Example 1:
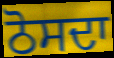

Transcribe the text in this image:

ਠੋਸਦਾ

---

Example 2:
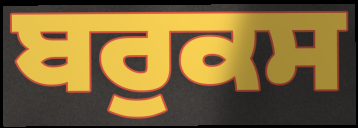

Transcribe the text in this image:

ਬਰੁਕਸ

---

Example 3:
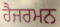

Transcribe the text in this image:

ਹੈਜਰਮਨ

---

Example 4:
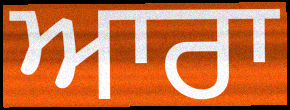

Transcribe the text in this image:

ਆਰਾ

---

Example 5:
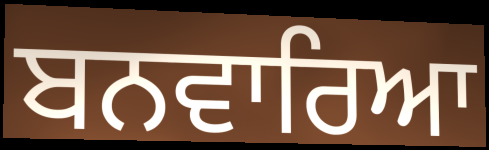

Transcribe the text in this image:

ਬਨਵਾਰਿਆ